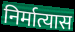
निर्मात्यास